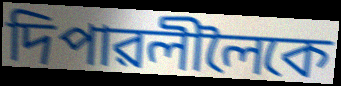
দিপাৱলীলৈকে